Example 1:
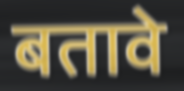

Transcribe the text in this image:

बतावे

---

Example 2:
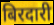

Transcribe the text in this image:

बिरदारी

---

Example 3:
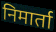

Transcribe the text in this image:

निमार्ता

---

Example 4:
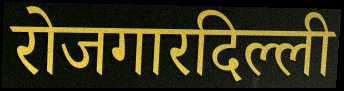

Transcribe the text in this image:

रोजगारदिल्ली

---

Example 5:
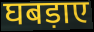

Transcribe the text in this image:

घबड़ाए